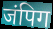
जंपिग